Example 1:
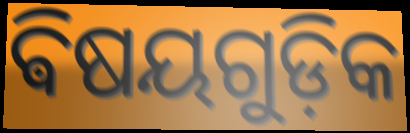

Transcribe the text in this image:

ଵିଷୟଗୁଡ଼ିକ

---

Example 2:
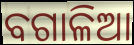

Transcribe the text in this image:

ବଗାଳିଆ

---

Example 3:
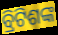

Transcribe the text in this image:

ବ୍ରିଟିଶଙ୍କ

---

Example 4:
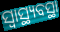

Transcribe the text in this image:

ସ୍ଵାସ୍ଥ୍ୟବସ୍ଥା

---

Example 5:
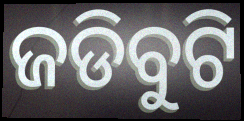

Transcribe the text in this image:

ଜଡିବୁଟି